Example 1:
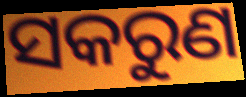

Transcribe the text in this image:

ସକରୁଣ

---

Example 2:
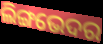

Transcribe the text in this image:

ଲିଙ୍ଗଭେଦର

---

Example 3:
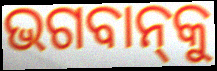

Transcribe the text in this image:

ଭଗବାନ୍‌କୁ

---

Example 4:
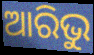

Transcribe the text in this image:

ଆରିଭୁ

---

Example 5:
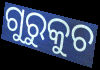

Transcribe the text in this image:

ଗୁରୁକୁଚ